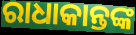
ରାଧାକାନ୍ତଙ୍କ